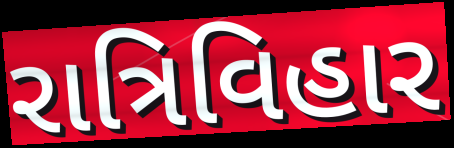
રાત્રિવિહાર